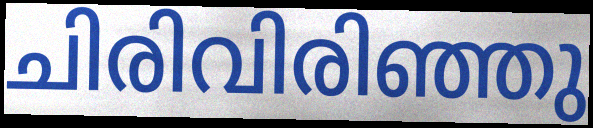
ചിരിവിരിഞ്ഞു